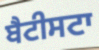
ਬੈਟੀਸਟਾ